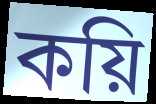
কয়ি